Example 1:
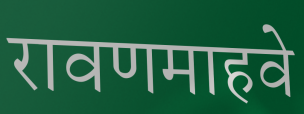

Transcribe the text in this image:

रावणमाहवे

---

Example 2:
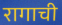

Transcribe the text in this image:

रागाची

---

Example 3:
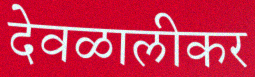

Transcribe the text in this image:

देवळालीकर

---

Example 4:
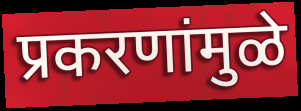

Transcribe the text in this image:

प्रकरणांमुळे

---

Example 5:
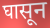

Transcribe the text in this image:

घासून